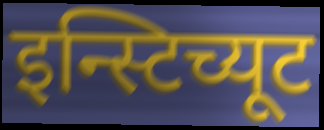
इन्स्टिच्यूट